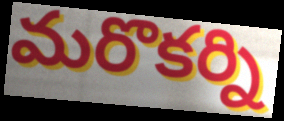
మరొకర్ని